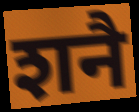
शनै